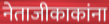
नेताजीकाकांना